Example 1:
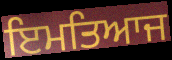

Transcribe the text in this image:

ਇਮਤਿਆਜ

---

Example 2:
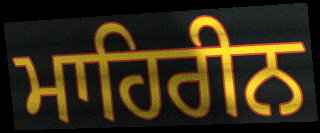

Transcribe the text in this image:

ਮਾਹਿਰੀਨ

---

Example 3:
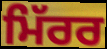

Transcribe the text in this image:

ਮਿੱਰਰ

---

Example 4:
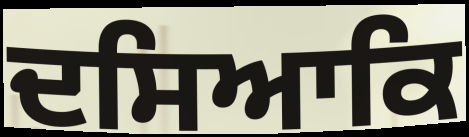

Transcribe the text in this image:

ਦਸਿਆਕਿ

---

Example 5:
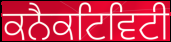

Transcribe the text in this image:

ਕਨੈਕਟਿਵਿਟੀ